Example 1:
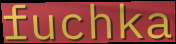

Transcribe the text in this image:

fuchka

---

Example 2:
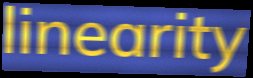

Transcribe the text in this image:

linearity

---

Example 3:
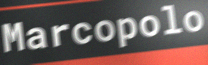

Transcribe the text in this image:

Marcopolo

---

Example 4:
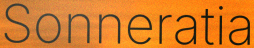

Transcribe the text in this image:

Sonneratia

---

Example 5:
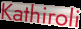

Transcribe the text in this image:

Kathiroli